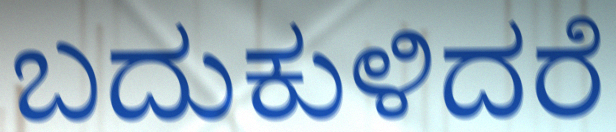
ಬದುಕುಳಿದರೆ